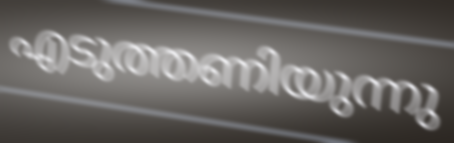
എടുത്തണിയുന്നു